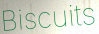
Biscuits